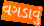
વગડાવું